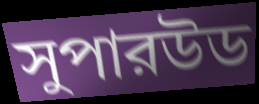
সুপারউড